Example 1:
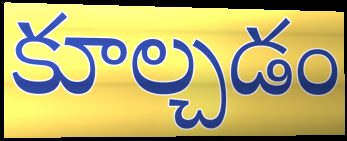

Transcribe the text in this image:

కూల్చడం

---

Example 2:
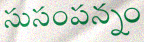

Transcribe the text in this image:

సుసంపన్నం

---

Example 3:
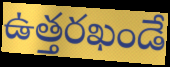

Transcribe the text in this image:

ఉత్తరఖండే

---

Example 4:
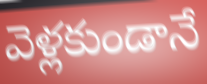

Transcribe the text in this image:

వెళ్లకుండానే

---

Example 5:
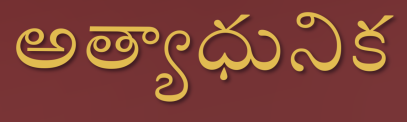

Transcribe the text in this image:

అత్యాధునిక